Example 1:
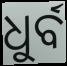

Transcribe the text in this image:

ଧୁର୍ବ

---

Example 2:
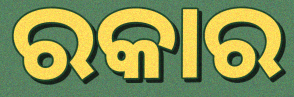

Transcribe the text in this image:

ରକାର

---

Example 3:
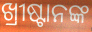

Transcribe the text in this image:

ଖ୍ରୀଷ୍ଟାନଙ୍କ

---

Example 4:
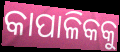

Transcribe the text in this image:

କାପାଳିକକୁ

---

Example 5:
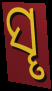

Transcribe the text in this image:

ସୄ